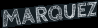
MARQUEZ